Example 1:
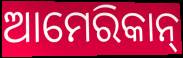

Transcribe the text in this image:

ଆମେରିକାନ୍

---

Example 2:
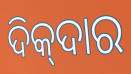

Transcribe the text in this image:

ଦିକ୍‍ଦାର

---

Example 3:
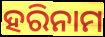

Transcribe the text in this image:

ହରିନାମ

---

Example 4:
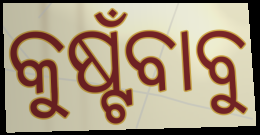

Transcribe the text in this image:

କୁଷ୍ଟଁବାବୁ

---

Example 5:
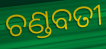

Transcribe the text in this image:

ଚଣ୍ଡବତୀ